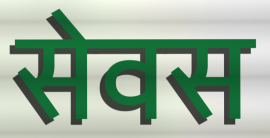
सेवस